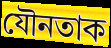
যৌনতাক